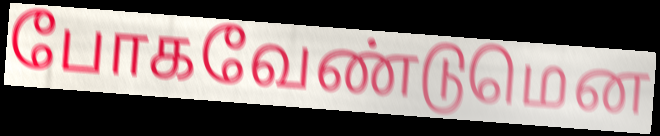
போகவேண்டுமென